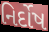
નિર્દોષ